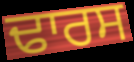
ਢਾਰਸ